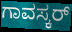
ಗಾವಸ್ಕರ್